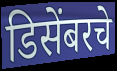
डिसेंबरचे